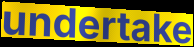
undertake